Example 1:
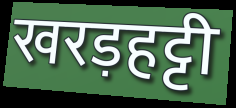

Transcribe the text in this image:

खरड़हट्टी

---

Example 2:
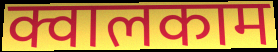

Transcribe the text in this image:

क्वालकाम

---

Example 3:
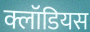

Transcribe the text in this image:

क्लॉडियस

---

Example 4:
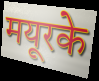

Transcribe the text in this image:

मयूरके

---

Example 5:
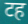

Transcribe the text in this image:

टह